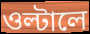
ওল্টালে